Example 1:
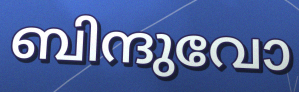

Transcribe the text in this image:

ബിന്ദുവോ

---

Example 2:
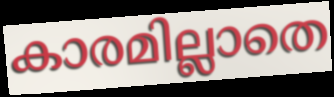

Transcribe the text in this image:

കാരമില്ലാതെ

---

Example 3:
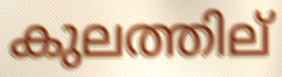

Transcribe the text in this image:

കുലത്തില്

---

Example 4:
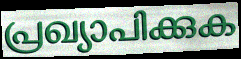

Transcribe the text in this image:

പ്രഖ്യാപിക്കുക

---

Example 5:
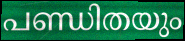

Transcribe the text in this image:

പണ്ഡിതയും